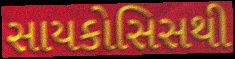
સાયકોસિસથી